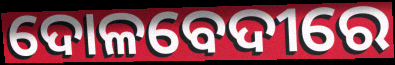
ଦୋଳବେଦୀରେ